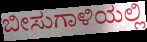
ಬೀಸುಗಾಳಿಯಲ್ಲಿ